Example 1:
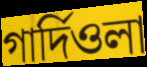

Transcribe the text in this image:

গার্দিওলা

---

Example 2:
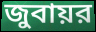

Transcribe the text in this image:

জুবায়র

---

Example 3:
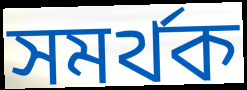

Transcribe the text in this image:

সমর্থক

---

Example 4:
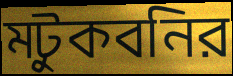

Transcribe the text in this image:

মটুকবনির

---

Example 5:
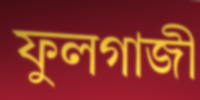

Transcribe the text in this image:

ফুলগাজী